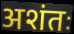
अशंतः